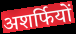
अशर्फियों